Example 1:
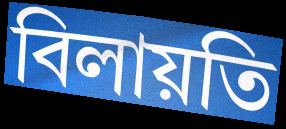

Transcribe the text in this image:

বিলায়তি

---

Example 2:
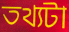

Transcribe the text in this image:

তথ্যটা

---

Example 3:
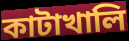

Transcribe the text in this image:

কাটাখালি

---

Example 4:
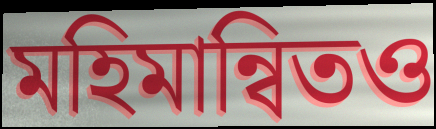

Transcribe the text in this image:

মহিমান্বিতও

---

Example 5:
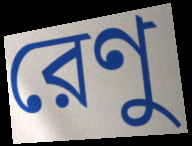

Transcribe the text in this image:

রেণু